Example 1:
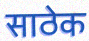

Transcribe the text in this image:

साठेक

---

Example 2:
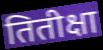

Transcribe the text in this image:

तितीक्षा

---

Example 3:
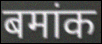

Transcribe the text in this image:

बमांक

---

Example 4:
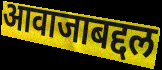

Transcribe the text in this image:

आवाजाबद्दल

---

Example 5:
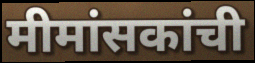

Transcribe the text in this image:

मीमांसकांची